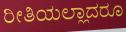
ರೀತಿಯಲ್ಲಾದರೂ